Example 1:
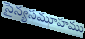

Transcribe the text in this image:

సైన్యసమూహము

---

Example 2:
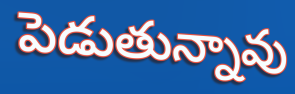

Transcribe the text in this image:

పెడుతున్నావు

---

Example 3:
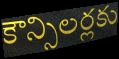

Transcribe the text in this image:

కౌన్సిలర్లకు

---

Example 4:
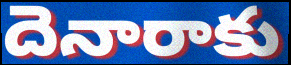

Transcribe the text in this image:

దెనారాకు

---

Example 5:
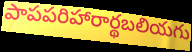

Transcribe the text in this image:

పాపపరిహారార్థబలియగు